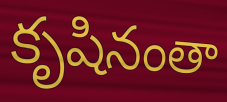
కృషినంతా